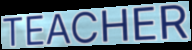
TEACHER